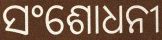
ସଂଶୋଧନୀ